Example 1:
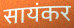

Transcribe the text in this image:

सायंकर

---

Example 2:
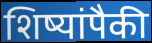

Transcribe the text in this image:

शिष्यांपैकी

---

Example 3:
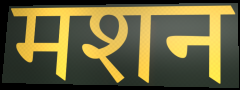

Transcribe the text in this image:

मशन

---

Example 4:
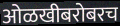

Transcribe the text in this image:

ओळखीबरोबरच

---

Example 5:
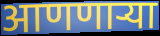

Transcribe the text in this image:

आणणाऱ्या